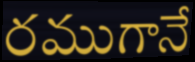
రముగానే